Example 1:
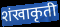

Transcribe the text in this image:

शंखाकृती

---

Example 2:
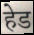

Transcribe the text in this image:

हेड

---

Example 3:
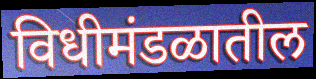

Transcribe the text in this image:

विधीमंडळातील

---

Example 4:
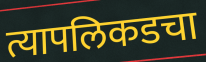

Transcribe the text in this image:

त्यापलिकडचा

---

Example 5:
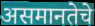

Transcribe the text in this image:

असमानतेचे